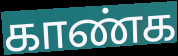
காண்க